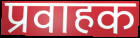
प्रवाहक